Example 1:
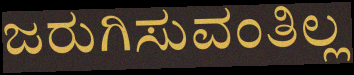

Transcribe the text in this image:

ಜರುಗಿಸುವಂತಿಲ್ಲ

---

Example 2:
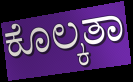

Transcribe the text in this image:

ಕೊಲ್ಕತಾ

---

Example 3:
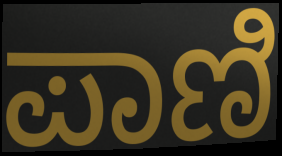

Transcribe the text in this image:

ಪಾಣಿ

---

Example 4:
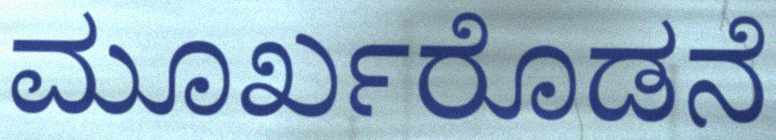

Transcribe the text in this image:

ಮೂರ್ಖರೊಡನೆ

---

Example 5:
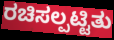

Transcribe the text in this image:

ರಚಿಸಲ್ಪಟ್ಟಿತು